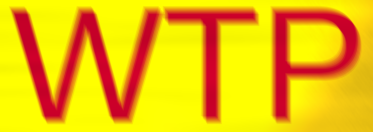
WTP